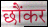
छौंकर